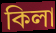
কিলা